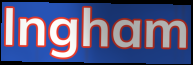
Ingham